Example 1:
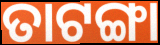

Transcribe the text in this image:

ତାଟଙ୍ଗା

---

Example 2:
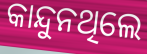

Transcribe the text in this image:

କାନ୍ଦୁନଥିଲେ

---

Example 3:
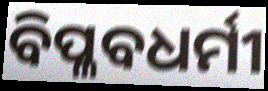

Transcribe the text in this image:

ବିପ୍ଳବଧର୍ମୀ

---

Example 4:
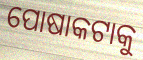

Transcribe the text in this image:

ପୋଷାକଟାକୁ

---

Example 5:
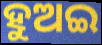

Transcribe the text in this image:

ହୁଅଇ